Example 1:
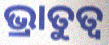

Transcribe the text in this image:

ଭ୍ରାତୁତ୍ଵ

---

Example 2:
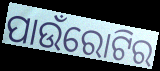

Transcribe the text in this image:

ପାଉଁରୋଟିର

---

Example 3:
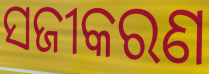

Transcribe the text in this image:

ସଜୀକରଣ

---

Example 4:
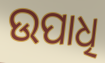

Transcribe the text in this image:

ଉପାଧି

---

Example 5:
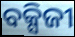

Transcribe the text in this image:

ବକ୍ସିଜୀ